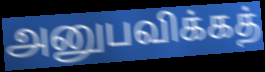
அனுபவிக்கத்